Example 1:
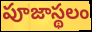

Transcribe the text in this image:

పూజాస్థలం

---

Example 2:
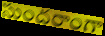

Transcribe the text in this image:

సుందరాంగా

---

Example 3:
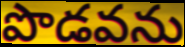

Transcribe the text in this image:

పొడవను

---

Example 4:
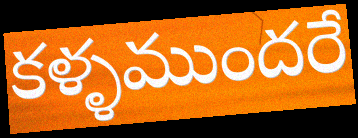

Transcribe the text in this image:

కళ్ళముందరే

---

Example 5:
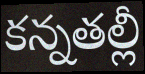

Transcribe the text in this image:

కన్నతల్లీ